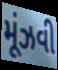
મૂંઝવી